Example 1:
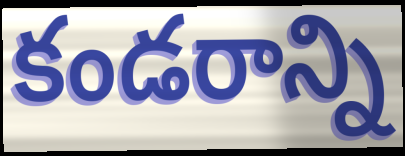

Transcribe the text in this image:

కండరాన్ని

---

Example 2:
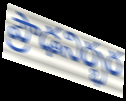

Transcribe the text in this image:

ప్రౌఢనిర్భర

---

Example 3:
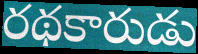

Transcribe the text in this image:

రథకారుడు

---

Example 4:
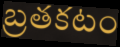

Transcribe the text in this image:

బ్రతకటం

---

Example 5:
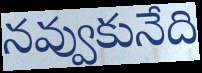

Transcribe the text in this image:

నవ్వుకునేది